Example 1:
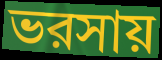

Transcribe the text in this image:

ভরসায়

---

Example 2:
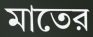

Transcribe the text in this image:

মাতের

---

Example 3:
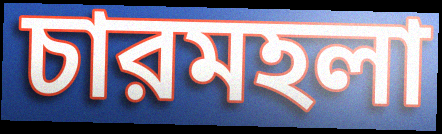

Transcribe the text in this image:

চারমহলা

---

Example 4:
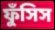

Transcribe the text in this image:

ফুঁসিস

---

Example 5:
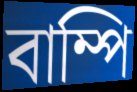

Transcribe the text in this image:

বাম্পি